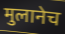
मुलानेच